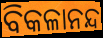
ବିକଳାନନ୍ଦ